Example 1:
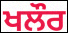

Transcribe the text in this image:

ਖਲੌਰ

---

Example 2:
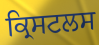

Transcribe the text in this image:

ਕ੍ਰਿਸਟਲਸ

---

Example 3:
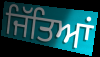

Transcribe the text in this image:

ਜਿੱਤਿਆਂ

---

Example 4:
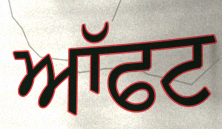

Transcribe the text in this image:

ਆੱਫਟ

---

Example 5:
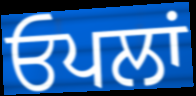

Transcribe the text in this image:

ਓਪਲਾਂ